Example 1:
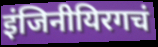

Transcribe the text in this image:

इंजिनीयिरगचं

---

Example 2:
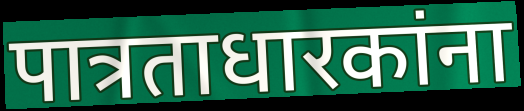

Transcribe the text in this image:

पात्रताधारकांना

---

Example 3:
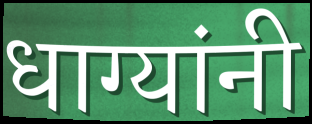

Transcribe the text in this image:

धाग्यांनी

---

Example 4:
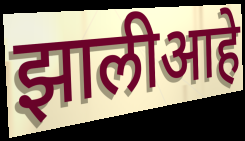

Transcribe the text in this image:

झालीआहे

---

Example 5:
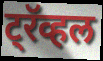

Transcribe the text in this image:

ट्रॅव्हल